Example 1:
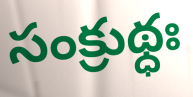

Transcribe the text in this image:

సంక్రుథ్ధః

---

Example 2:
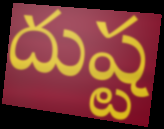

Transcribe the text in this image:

దుష్ట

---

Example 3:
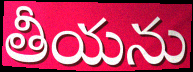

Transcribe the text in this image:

తీయను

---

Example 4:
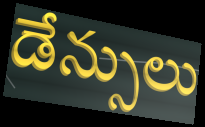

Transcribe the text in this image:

డేన్సులు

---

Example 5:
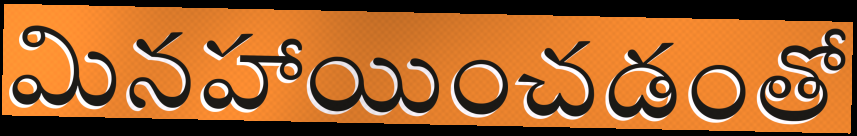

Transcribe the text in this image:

మినహాయించడంతో